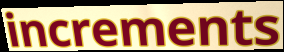
increments